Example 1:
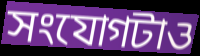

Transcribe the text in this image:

সংযোগটাও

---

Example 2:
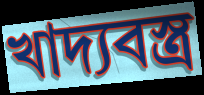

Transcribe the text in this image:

খাদ্যবস্ত্র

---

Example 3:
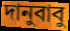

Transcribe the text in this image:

দানুবাবু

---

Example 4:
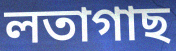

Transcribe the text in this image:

লতাগাছ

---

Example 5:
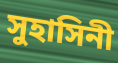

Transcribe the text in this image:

সুহাসিনী